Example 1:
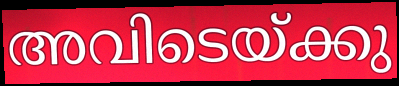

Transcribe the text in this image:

അവിടെയ്ക്കു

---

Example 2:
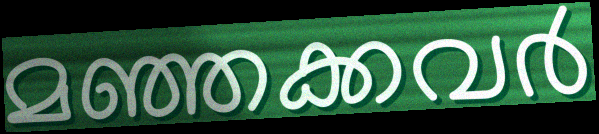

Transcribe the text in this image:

മഞ്ഞക്കവർ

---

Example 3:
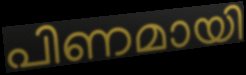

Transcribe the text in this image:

പിണമായി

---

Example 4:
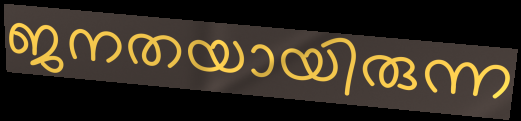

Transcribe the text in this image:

ജനതയായിരുന്ന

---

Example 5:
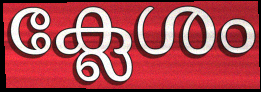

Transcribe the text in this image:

ക്ലേശം